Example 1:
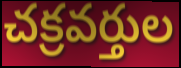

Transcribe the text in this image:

చక్రవర్తుల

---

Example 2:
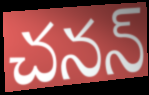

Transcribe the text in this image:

చనన్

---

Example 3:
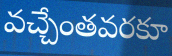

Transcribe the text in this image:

వచ్చేంతవరకూ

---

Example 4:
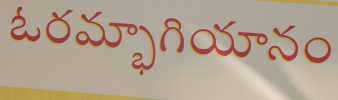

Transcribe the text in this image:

ఓరమ్భాగియానం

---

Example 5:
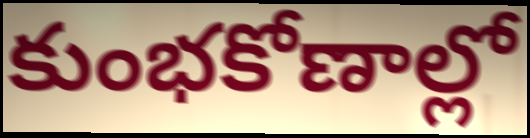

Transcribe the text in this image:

కుంభకోణాల్లో